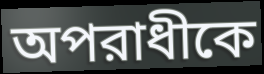
অপরাধীকে